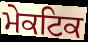
ਮੇਕਟਿਕ